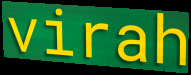
virah